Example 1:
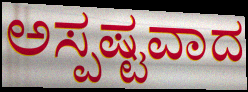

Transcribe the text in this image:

ಅಸ್ಪಷ್ಟವಾದ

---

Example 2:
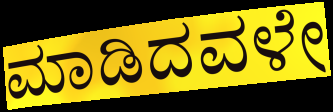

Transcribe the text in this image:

ಮಾಡಿದವಳೇ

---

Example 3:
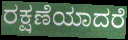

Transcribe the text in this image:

ರಕ್ಷಣೆಯಾದರೆ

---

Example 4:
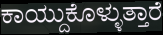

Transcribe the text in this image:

ಕಾಯ್ದುಕೊಳ್ಳುತ್ತಾರೆ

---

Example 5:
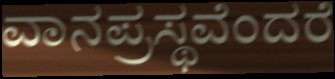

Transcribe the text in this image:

ವಾನಪ್ರಸ್ಥವೆಂದರೆ